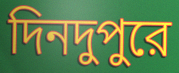
দিনদুপুরে